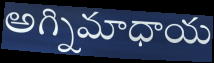
అగ్నిమాధాయ